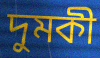
দুমকী